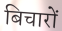
बिचारों